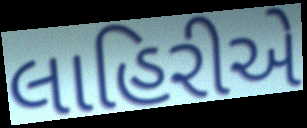
લાહિરીએ